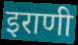
इराणी